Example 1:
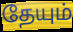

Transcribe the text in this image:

தேயும்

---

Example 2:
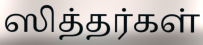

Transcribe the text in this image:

ஸித்தர்கள்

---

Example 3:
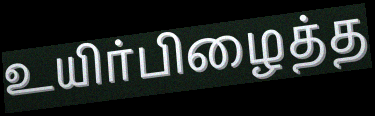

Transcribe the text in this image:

உயிர்பிழைத்த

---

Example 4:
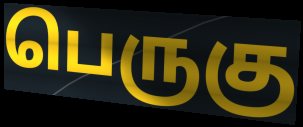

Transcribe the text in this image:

பெருகு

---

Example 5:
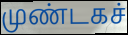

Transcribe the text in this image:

முண்டகச்